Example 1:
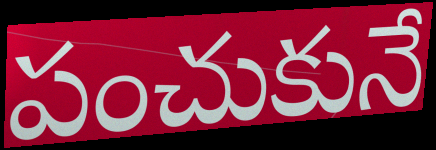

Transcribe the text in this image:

పంచుకునే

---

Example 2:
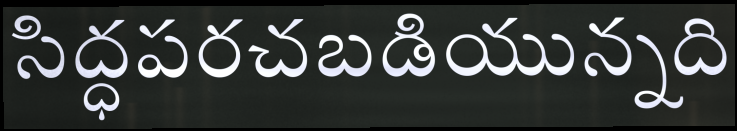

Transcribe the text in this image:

సిద్ధపరచబడియున్నది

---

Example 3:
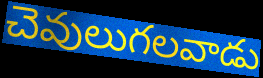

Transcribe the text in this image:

చెవులుగలవాడు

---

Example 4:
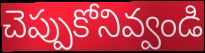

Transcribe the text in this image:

చెప్పుకోనివ్వండి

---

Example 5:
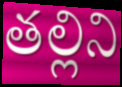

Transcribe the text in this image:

తల్లిని